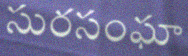
సురసంఘా